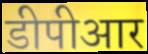
डीपीआर